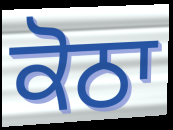
ਕੋਠਾ